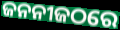
ଜନନୀଜଠରେ